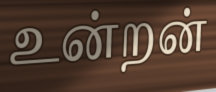
உன்றன்